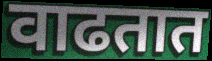
वाढतात